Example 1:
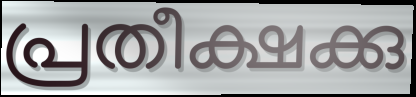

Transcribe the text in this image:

പ്രതീക്ഷക്കു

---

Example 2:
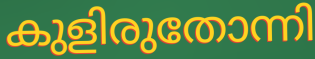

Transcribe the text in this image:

കുളിരുതോന്നി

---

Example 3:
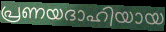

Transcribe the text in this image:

പ്രണയദാഹിയായ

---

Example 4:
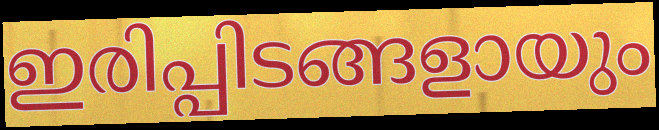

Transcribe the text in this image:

ഇരിപ്പിടങ്ങളായും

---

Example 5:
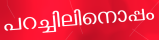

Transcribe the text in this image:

പറച്ചിലിനൊപ്പം